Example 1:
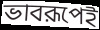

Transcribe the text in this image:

ভাবরূপেই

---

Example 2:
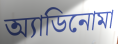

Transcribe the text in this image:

অ্যাডিনোমা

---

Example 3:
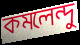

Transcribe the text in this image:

কমলেন্দু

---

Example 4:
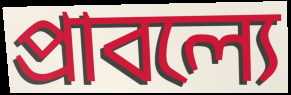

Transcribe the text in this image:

প্রাবল্যে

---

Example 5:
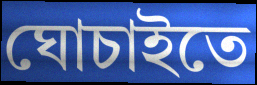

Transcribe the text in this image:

ঘোচাইতে